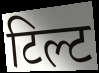
टिल्ट